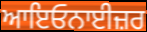
ਆਇਓਨਾਈਜ਼ਰ